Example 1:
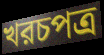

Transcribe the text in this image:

খরচপত্র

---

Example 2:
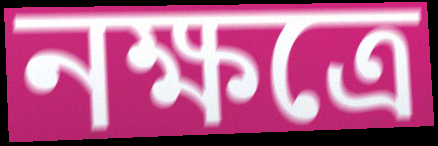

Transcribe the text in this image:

নক্ষত্রে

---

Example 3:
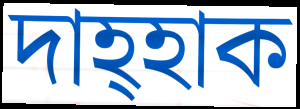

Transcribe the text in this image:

দাহ্হাক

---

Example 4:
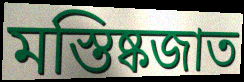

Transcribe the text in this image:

মস্তিষ্কজাত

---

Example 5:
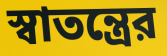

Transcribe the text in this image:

স্বাতন্ত্রের